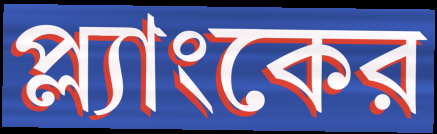
প্ল্যাংকের